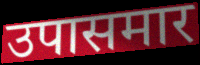
उपासमार